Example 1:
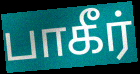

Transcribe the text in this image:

பாகீர்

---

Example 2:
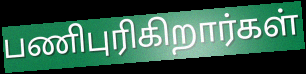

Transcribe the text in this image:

பணிபுரிகிறார்கள்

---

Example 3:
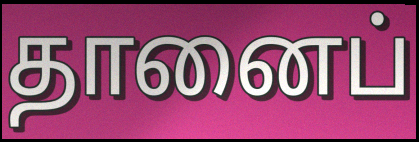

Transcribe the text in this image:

தானைப்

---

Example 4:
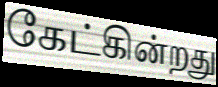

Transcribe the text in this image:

கேட்கின்றது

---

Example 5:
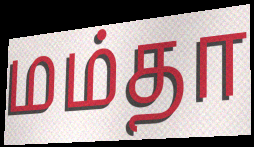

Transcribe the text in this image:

மம்தா